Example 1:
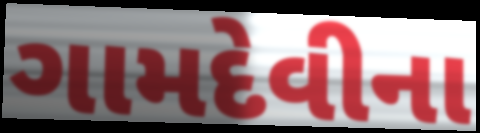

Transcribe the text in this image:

ગામદેવીના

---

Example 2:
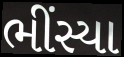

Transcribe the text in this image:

ભીંસ્યા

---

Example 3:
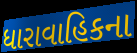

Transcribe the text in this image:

ધારાવાહિકના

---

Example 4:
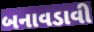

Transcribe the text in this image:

બનાવડાવી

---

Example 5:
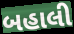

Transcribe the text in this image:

બહાલી